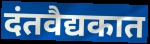
दंतवैद्यकात